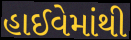
હાઈવેમાંથી